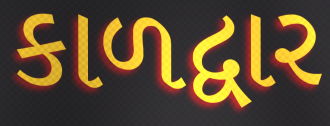
કાળદ્વાર